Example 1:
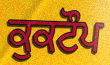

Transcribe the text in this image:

ਕੁਕਟੌਪ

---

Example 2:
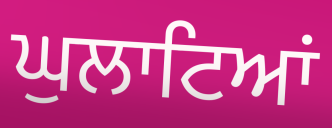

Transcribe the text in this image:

ਘੁਲਾਟਿਆਂ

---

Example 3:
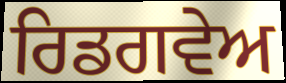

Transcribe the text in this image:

ਰਿਡਗਵੇਅ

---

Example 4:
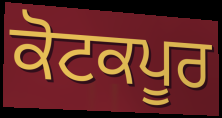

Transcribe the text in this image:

ਕੋਟਕਪੂਰ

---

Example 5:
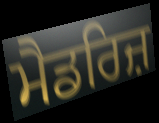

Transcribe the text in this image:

ਮੈਡਰਿਜ਼